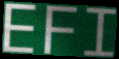
EFI